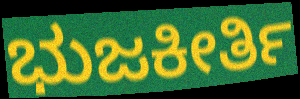
ಭುಜಕೀರ್ತಿ